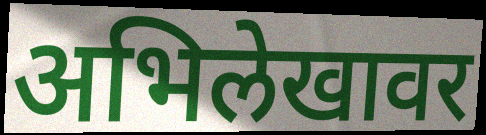
अभिलेखावर